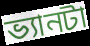
ভ্যানটা